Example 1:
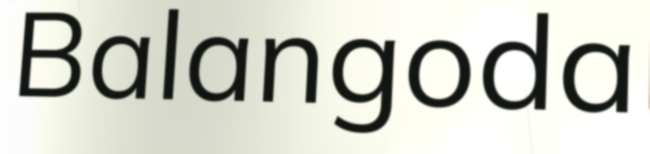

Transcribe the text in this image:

Balangoda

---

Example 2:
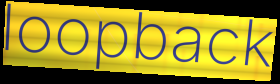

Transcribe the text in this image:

loopback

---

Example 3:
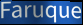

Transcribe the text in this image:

Faruque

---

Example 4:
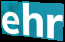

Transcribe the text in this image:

ehr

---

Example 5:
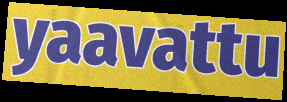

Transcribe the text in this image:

yaavattu